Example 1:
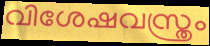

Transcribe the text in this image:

വിശേഷവസ്ത്രം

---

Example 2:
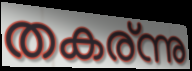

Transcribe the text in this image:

തകര്ന്നു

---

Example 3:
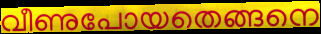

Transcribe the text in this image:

വീണുപോയതെങ്ങനെ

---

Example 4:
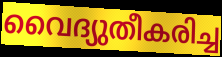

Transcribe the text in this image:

വൈദ്യുതീകരിച്ച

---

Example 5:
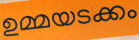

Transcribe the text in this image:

ഉമ്മയടക്കം